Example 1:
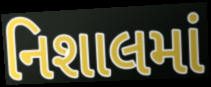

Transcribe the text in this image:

નિશાલમાં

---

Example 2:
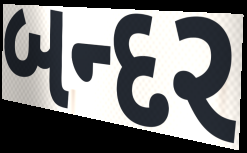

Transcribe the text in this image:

બન્દર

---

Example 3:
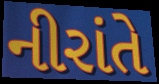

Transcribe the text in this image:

નીરાંતે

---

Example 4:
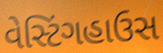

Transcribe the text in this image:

વેસ્ટિંગહાઉસ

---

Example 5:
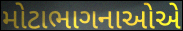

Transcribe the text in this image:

મોટાભાગનાઓએ